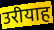
उरीयाह